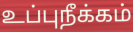
உப்புநீக்கம்